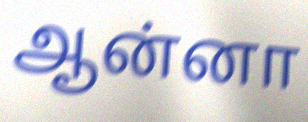
ஆன்னா